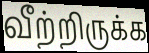
வீற்றிருக்க